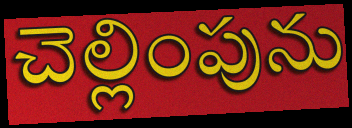
చెల్లింపును